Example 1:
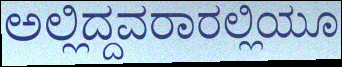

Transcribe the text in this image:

ಅಲ್ಲಿದ್ದವರಾರಲ್ಲಿಯೂ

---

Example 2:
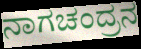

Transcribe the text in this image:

ನಾಗಚಂದ್ರನ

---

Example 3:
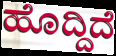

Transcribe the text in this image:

ಹೊದ್ದಿದೆ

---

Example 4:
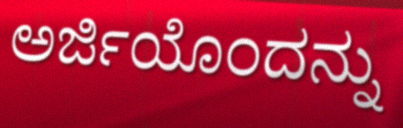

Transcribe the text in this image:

ಅರ್ಜಿಯೊಂದನ್ನು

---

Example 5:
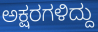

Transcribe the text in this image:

ಅಕ್ಷರಗಳಿದ್ದು